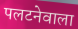
पलटनेवाला